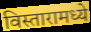
विस्तारामध्ये